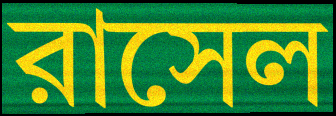
রাসেল